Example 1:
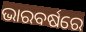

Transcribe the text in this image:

ଭାରବର୍ଷରେ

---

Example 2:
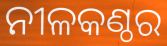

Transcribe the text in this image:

ନୀଳକଣ୍ଠର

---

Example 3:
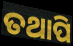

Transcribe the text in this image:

ତଥାପି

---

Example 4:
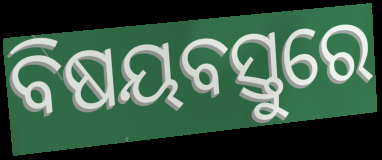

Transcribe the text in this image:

ବିଷୟବସ୍ତୁରେ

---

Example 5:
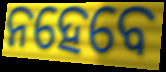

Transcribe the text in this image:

ନହେବେ